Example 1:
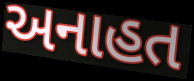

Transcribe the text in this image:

અનાહત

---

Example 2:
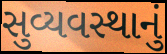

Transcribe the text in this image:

સુવ્યવસ્થાનું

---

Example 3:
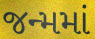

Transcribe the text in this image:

જન્મમાં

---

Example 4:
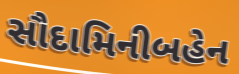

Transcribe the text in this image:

સૌદામિનીબહેન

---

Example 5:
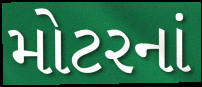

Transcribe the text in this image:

મોટરનાં